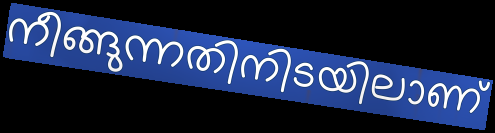
നീങ്ങുന്നതിനിടയിലാണ്